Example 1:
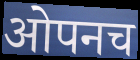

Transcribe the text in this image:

ओपनच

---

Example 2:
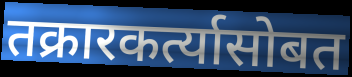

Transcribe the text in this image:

तक्रारकर्त्यासोबत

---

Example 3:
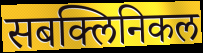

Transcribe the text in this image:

सबक्लिनिकल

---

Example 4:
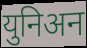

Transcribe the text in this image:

युनिअन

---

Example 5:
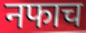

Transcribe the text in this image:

नफाच